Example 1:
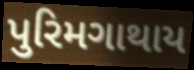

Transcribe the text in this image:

પુરિમગાથાય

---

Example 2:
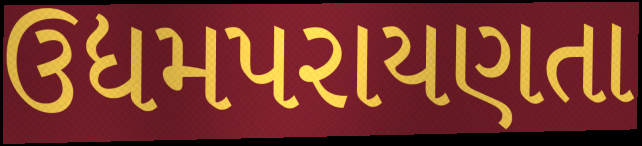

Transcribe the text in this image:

ઉદ્યમપરાયણતા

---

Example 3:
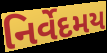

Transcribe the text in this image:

નિર્વેદમય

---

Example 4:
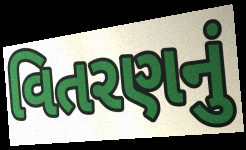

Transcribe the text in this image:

વિતરણનું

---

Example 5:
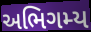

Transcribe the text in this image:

અભિગમ્ય